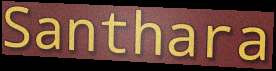
Santhara